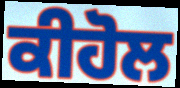
ਕੀਹੋਲ